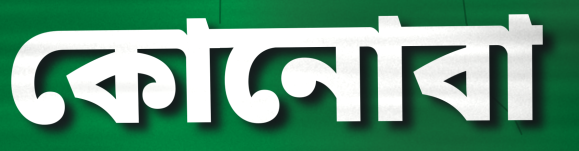
কোনোবা